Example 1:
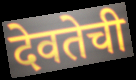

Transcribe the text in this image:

देवतेची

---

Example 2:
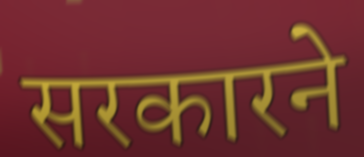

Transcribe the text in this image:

सरकारने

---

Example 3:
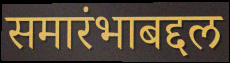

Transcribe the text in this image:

समारंभाबद्दल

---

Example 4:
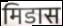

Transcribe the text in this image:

मिडास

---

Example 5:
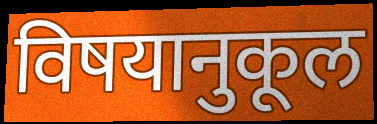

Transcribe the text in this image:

विषयानुकूल